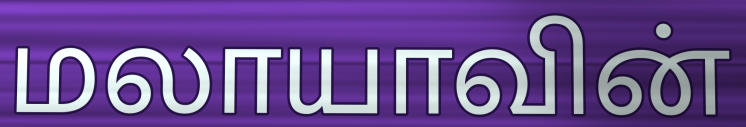
மலாயாவின்